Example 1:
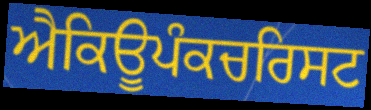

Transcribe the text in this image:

ਐਕਿਊਪੰਕਚਰਿਸਟ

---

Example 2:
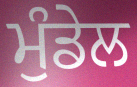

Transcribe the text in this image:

ਮੁੰਡੇਲ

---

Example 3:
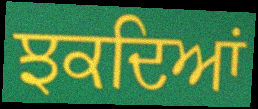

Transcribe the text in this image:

ਝਕਦਿਆਂ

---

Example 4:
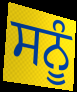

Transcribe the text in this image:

ਸਨੂੰ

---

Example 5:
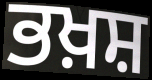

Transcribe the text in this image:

ਭਖ਼ਸ਼